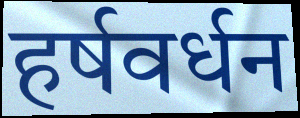
हर्षवर्धन